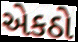
એકઠો